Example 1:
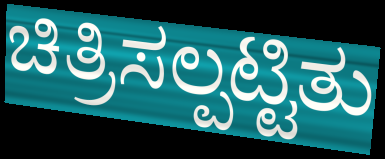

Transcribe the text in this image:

ಚಿತ್ರಿಸಲ್ಪಟ್ಟಿತು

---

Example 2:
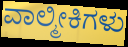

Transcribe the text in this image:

ವಾಲ್ಮೀಕಿಗಳು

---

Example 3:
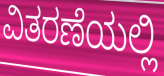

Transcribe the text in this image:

ವಿತರಣೆಯಲ್ಲಿ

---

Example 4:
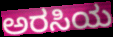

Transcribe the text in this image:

ಅರಸಿಯ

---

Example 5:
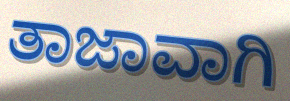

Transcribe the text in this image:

ತಾಜಾವಾಗಿ